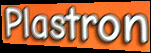
Plastron